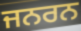
ਜਨਰਨ